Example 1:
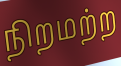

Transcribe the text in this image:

நிறமற்ற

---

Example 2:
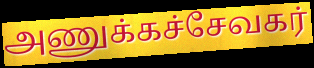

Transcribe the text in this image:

அணுக்கச்சேவகர்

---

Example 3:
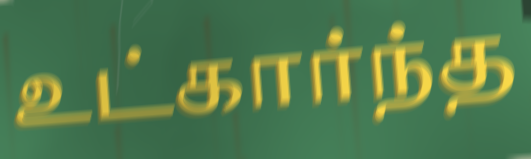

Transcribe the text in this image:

உட்கார்ந்த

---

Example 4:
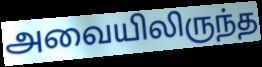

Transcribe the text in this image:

அவையிலிருந்த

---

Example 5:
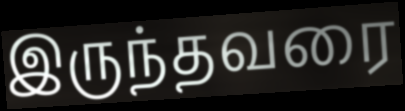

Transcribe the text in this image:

இருந்தவரை